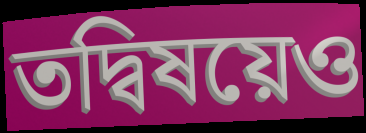
তদ্বিষয়েও